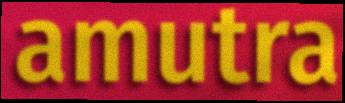
amutra